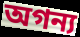
অগন্য